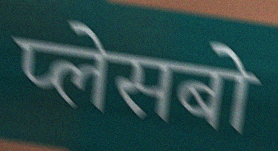
प्लेसबो